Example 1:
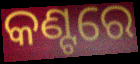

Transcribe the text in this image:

କଣ୍ଟରେ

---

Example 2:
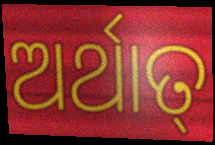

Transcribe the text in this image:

ଅର୍ଥାତ୍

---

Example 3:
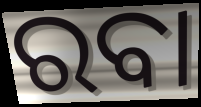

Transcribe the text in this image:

ରବା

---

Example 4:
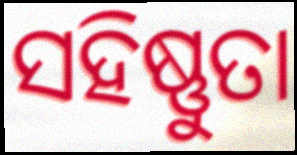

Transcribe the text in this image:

ସହିଷ୍ଣୁତା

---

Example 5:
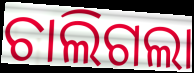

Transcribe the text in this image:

ଚାଲିଗଲା